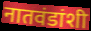
नातवंडांशी